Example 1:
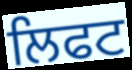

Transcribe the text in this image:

ਲਿਫਟ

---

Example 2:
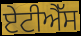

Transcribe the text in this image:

ਏਟੀਐੱਸ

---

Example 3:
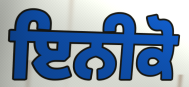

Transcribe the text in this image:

ਇਨੀਕੋ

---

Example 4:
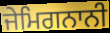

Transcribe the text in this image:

ਜੇਮਿਗਨਾਨੀ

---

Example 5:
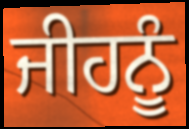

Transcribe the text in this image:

ਜੀਹਨੂੰ